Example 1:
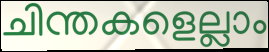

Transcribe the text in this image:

ചിന്തകളെല്ലാം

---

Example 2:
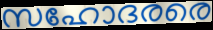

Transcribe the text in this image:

സഹോദരരെ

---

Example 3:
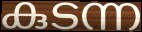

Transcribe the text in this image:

കുടന്ന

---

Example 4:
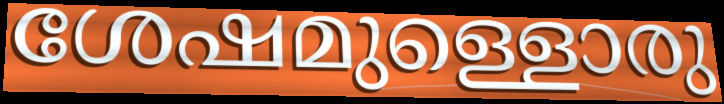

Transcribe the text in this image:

ശേഷമുള്ളൊരു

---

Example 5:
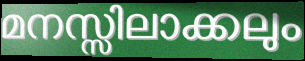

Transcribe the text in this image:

മനസ്സിലാക്കലും